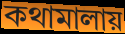
কথামালায়